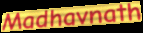
Madhavnath